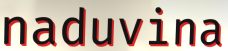
naduvina